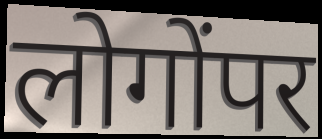
लोगोंपर